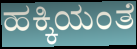
ಹಕ್ಕಿಯಂತೆ